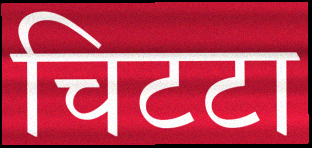
चिटटा